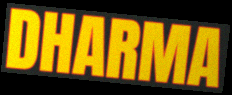
DHARMA